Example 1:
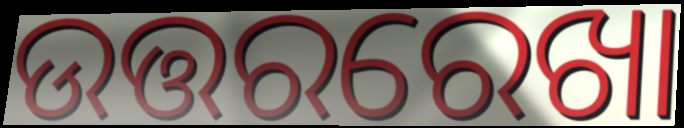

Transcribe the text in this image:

ଉତ୍ତରରେଖା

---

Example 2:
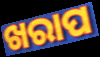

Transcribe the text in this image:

ଖରାପ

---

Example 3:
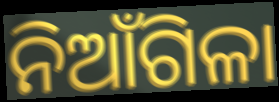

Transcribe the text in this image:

ନିଆଁଗିଳା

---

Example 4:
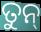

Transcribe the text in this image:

ତୁନ୍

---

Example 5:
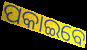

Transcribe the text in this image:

ପକାଇବେ